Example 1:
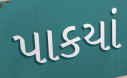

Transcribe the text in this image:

પાકયાં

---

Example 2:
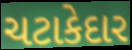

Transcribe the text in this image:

ચટાકેદાર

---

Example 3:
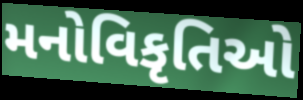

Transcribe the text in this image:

મનોવિકૃતિઓ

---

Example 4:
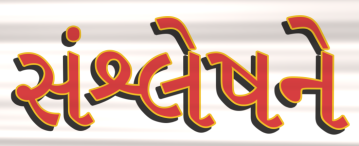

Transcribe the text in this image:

સંશ્લેષને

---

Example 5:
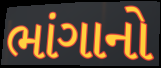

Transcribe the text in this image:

ભાંગાનો